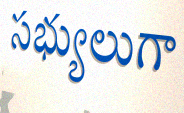
సభ్యులుగా